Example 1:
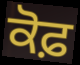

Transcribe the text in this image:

ਕੋਫ਼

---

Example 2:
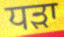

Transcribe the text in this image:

ਧੜਾ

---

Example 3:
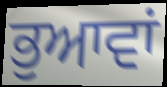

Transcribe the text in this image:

ਭੁਆਵਾਂ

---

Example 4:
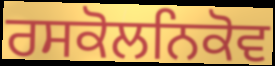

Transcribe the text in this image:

ਰਸਕੋਲਨਿਕੋਵ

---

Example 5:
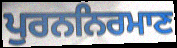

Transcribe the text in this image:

ਪੁਰਨਨਿਰਮਾਣ